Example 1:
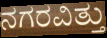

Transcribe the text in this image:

ನಗರವಿತ್ತು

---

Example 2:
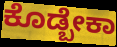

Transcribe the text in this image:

ಕೊಡ್ಬೇಕಾ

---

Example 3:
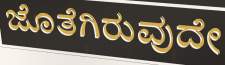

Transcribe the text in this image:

ಜೊತೆಗಿರುವುದೇ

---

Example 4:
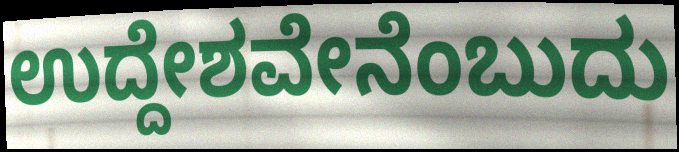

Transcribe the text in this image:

ಉದ್ದೇಶವೇನೆಂಬುದು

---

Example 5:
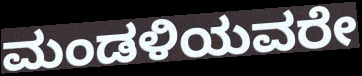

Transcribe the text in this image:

ಮಂಡಳಿಯವರೇ